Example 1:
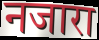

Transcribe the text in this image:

नजारा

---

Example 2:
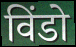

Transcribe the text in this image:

विंडो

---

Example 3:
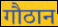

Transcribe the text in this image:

गौठान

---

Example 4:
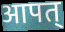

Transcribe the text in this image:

आपत्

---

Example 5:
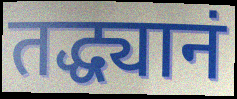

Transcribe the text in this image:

तद्ध्यानं